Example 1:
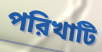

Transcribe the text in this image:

পরিখাটি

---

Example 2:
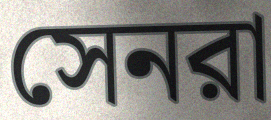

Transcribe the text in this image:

সেনরা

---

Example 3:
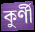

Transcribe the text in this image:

কুর্ণী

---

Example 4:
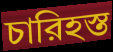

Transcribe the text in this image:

চারিহস্ত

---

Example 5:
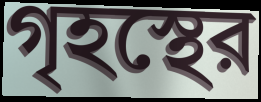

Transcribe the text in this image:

গৃহস্থের